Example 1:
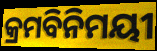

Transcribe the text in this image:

କ୍ରମବିନିମୟୀ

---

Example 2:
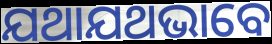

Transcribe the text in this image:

ଯଥାଯଥଭାବେ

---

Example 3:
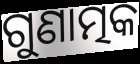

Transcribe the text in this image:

ଗୁଣାତ୍ମକ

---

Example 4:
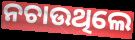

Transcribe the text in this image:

ନଚାଉଥିଲେ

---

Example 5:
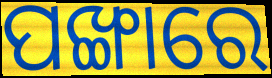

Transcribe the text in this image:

ପଙ୍ଖାରେ